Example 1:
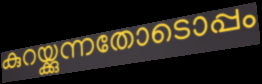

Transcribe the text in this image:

കുറയ്ക്കുന്നതോടൊപ്പം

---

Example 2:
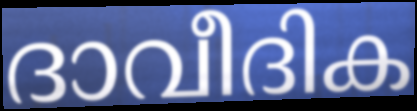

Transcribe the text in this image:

ദാവീദിക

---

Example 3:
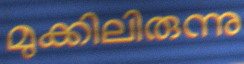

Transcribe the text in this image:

മുക്കിലിരുന്നു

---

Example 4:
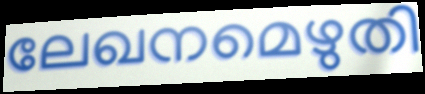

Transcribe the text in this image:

ലേഖനമെഴുതി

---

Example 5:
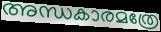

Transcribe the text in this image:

അന്ധകാരമത്രേ